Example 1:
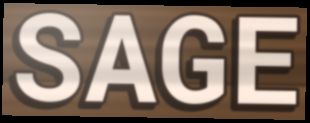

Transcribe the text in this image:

SAGE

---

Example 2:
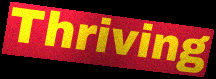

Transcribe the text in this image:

Thriving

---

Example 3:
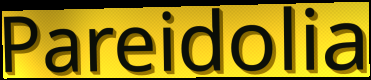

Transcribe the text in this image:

Pareidolia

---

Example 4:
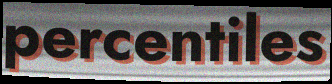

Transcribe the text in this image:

percentiles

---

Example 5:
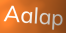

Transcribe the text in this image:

Aalap